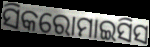
ସିକରୋମାଇସିସ